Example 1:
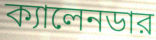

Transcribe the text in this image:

ক্যালেনডার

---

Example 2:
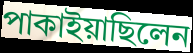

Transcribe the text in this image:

পাকাইয়াছিলেন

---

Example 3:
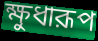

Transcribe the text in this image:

ক্ষুধারূপ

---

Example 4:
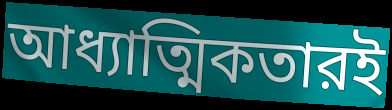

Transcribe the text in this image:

আধ্যাত্মিকতারই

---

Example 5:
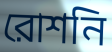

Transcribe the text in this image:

রোশনি